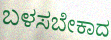
ಬಳಸಬೇಕಾದ